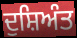
ਦੁਸ਼ਿਅੰਤ